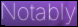
Notably